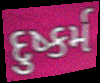
દુષ્કર્મ